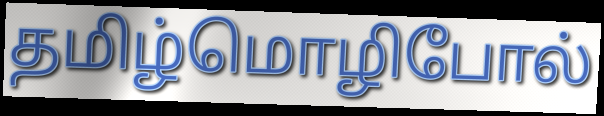
தமிழ்மொழிபோல்